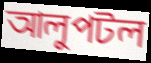
আলুপটল